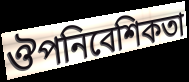
ঔপনিবেশিকতা